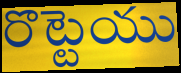
రొట్టెయు